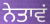
ਨੇਤਾਵਂ